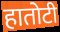
हातोटी